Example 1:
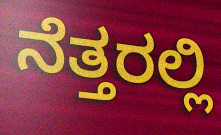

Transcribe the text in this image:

ನೆತ್ತರಲ್ಲಿ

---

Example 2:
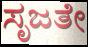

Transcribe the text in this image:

ಸೃಜತೇ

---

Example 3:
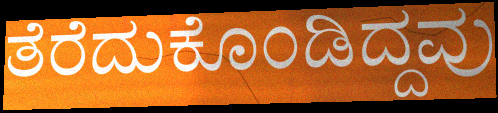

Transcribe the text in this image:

ತೆರೆದುಕೊಂಡಿದ್ದವು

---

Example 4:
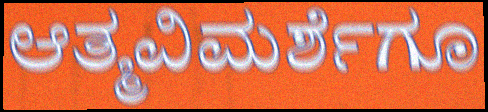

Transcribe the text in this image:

ಆತ್ಮವಿಮರ್ಶೆಗೂ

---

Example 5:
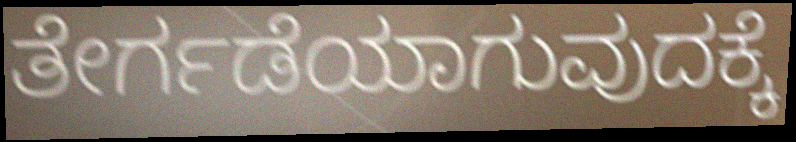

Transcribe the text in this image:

ತೇರ್ಗಡೆಯಾಗುವುದಕ್ಕೆ